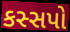
કસ્સપો